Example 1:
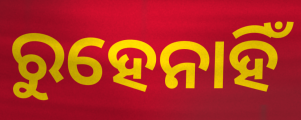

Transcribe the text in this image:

ରୁହେନାହିଁ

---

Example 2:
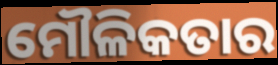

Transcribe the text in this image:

ମୌଳିକତାର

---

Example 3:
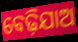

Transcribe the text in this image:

ବେଢ଼ିଯାଅ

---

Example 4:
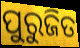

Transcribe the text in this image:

ପୁରୁଜିତ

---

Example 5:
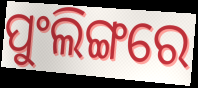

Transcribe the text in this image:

ପୁଂଲିଙ୍ଗରେ